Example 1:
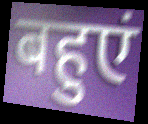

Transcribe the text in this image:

बहुएं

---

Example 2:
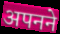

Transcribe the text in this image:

अपनने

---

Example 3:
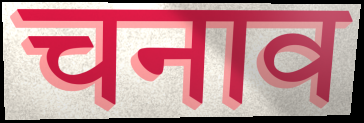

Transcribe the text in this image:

चनाव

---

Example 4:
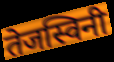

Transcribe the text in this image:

तेजस्विनी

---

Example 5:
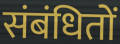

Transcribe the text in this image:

संबंधितों